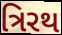
ત્રિરથ